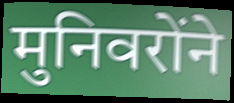
मुनिवरोंने